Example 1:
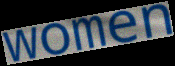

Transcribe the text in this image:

women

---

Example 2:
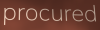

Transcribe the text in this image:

procured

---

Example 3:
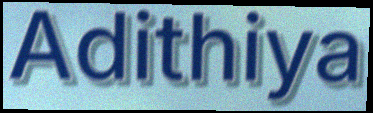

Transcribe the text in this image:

Adithiya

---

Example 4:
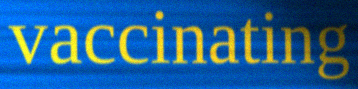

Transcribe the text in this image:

vaccinating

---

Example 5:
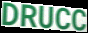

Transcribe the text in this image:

DRUCC